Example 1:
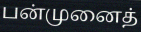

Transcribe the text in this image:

பன்முனைத்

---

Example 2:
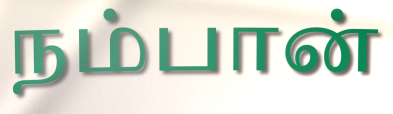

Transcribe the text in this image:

நம்பான்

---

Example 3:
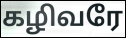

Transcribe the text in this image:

கழிவரே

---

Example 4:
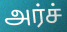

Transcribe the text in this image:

அர்ச்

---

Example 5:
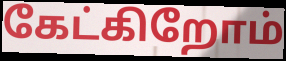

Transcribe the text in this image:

கேட்கிறோம்